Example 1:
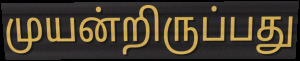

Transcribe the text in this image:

முயன்றிருப்பது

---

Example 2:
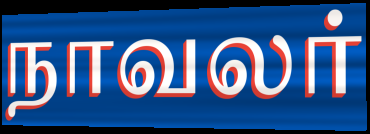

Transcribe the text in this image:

நாவலர்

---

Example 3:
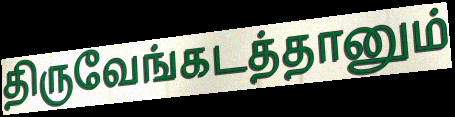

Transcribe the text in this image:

திருவேங்கடத்தானும்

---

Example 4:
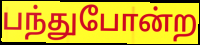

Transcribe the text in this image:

பந்துபோன்ற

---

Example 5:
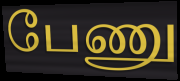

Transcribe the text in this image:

பேணு